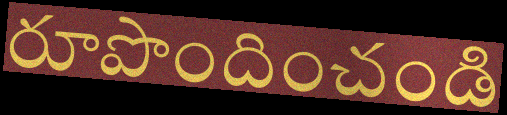
రూపొందించండి